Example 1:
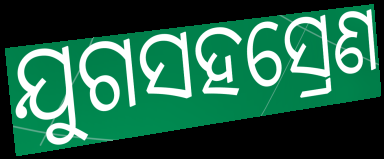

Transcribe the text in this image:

ଯୁଗସହସ୍ରେଣ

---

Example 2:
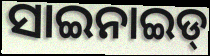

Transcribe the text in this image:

ସାଇନାଇଡ୍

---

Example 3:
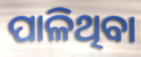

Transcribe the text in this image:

ପାଳିଥିବା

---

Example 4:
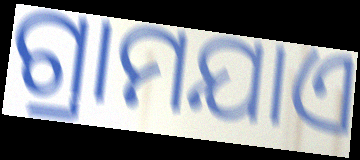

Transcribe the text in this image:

ଗ୍ରାମଯାଏ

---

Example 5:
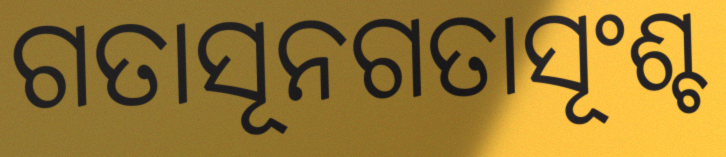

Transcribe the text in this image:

ଗତାସୂନଗତାସୂଂଶ୍ଚ